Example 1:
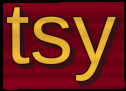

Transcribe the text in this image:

tsy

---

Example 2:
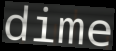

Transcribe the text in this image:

dime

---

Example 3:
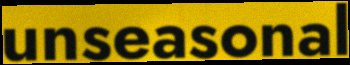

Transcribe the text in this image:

unseasonal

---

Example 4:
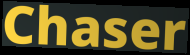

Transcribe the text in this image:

Chaser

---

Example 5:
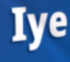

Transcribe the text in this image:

Iye